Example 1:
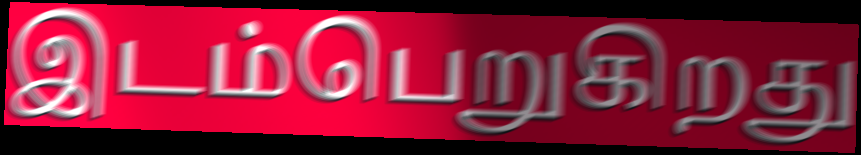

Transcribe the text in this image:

இடம்பெறுகிறது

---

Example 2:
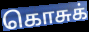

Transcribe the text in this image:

கொசுக்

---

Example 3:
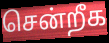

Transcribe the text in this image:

சென்றீக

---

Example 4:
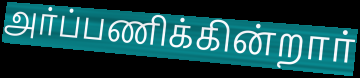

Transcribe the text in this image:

அர்ப்பணிக்கின்றார்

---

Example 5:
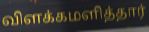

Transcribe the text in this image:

விளக்கமளித்தார்